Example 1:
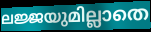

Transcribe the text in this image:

ലജ്ജയുമില്ലാതെ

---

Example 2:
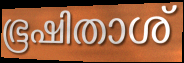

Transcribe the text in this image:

ഭൂഷിതാശ്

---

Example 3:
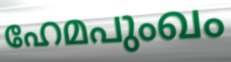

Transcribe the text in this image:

ഹേമപുംഖം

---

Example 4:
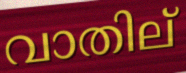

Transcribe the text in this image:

വാതില്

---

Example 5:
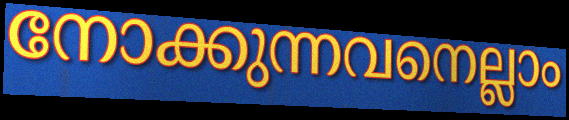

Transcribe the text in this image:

നോക്കുന്നവനെല്ലാം